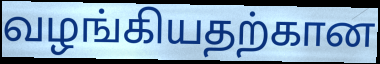
வழங்கியதற்கான